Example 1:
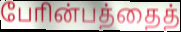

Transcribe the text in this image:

பேரின்பத்தைத்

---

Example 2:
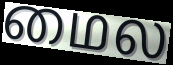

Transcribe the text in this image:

மைல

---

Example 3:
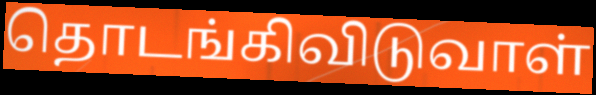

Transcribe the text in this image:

தொடங்கிவிடுவாள்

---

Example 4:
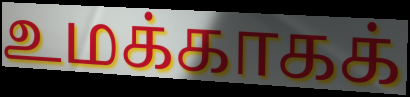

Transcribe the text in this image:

உமக்காகக்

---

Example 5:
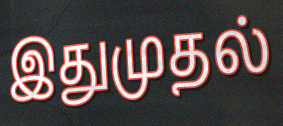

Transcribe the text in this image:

இதுமுதல்